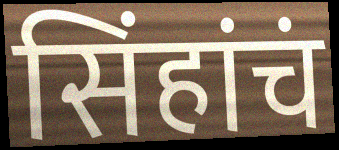
सिंहांचं